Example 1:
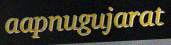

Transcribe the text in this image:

aapnugujarat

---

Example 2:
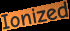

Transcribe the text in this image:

Ionized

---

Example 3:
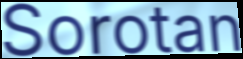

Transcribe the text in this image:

Sorotan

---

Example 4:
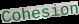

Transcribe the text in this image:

Cohesion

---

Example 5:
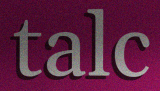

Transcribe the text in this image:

talc